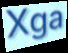
Xga